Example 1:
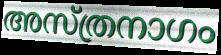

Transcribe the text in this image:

അസ്ത്രനാഗം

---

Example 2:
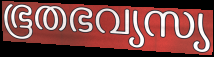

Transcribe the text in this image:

ഭൂതഭവ്യസ്യ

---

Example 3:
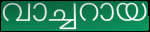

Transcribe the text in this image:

വാച്ചറായ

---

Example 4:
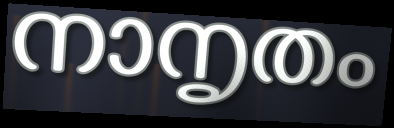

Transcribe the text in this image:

നാനൃതം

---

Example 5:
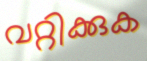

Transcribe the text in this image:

വറ്റിക്കുക